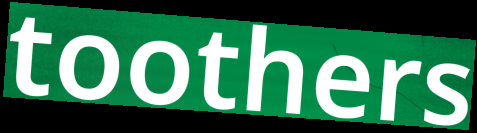
toothers